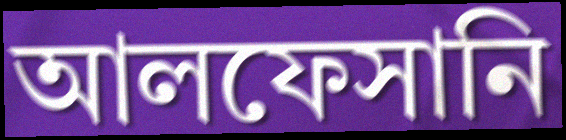
আলফেসানি